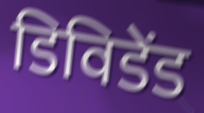
डिविडेंड